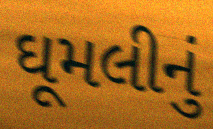
ઘૂમલીનું